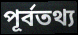
পূর্বতথ্য